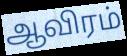
ஆவிரம்